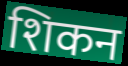
शिकन